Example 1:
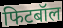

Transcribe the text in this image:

फिटबॉल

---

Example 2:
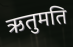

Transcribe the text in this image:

ऋतुमति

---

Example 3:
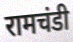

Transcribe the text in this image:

रामचंडी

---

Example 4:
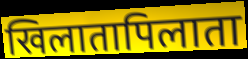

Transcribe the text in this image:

खिलातापिलाता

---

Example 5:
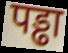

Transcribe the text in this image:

पड्ढा